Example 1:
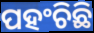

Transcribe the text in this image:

ପହଂଚିଛି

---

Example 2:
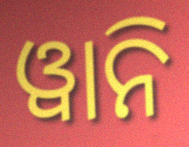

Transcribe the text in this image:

ୱାନି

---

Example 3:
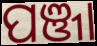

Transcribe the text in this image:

ପଞ୍ଜା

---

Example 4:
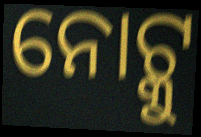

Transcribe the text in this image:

ନୋଟ୍କୁ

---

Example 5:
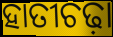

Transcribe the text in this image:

ହାତୀଚଢ଼ା